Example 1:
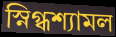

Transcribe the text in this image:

স্নিগ্ধশ্যামল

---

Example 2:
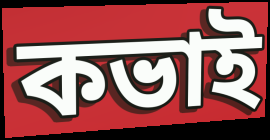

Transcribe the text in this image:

কভাই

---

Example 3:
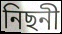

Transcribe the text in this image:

নিছনী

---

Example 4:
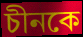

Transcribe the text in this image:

চীনকে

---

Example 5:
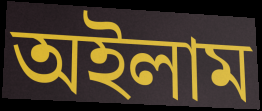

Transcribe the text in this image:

অইলাম